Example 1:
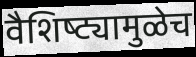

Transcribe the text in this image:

वैशिष्ट्यामुळेच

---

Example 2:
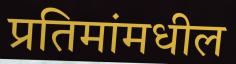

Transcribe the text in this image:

प्रतिमांमधील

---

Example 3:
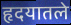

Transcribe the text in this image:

हृदयातले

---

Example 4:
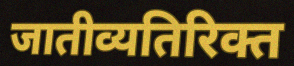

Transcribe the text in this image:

जातीव्यतिरिक्त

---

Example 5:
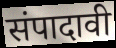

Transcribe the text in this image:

संपादावी